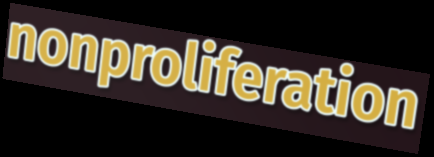
nonproliferation